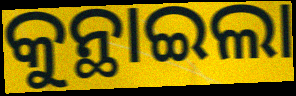
କୁନ୍ଥାଇଲା